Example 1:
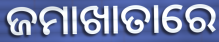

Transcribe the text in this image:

ଜମାଖାତାରେ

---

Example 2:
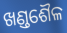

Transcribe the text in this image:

ଖଣ୍ଡଶୈଳ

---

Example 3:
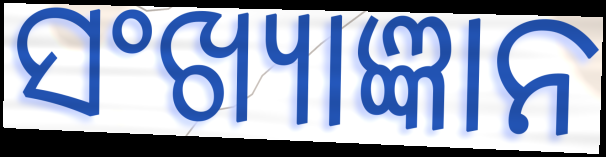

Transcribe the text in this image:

ସଂଖ୍ୟାଜ୍ଞାନ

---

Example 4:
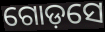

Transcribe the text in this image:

ଗୋଡ଼ସେ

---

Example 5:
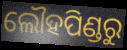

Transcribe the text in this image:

ଲୌହପିଣ୍ଡରୁ